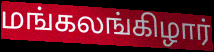
மங்கலங்கிழார்